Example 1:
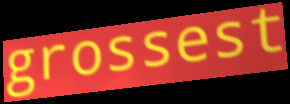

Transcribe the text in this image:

grossest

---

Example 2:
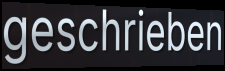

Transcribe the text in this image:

geschrieben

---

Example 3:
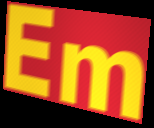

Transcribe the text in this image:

Em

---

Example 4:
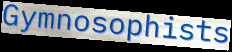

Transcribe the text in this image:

Gymnosophists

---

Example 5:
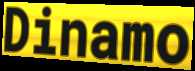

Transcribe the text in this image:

Dinamo